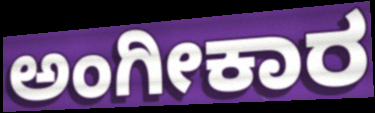
ಅಂಗೀಕಾರ